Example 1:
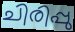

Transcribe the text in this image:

ചിരിപ്പു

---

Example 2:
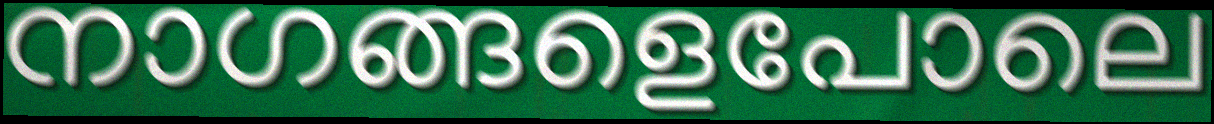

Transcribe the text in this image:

നാഗങ്ങളെപോലെ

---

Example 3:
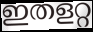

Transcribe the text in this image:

ഇതളറ്റ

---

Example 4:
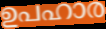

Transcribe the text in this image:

ഉപഹാര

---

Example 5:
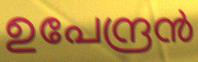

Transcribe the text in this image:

ഉപേന്ദ്രൻ